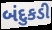
બંદુકડી